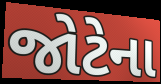
જોટેના